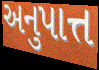
અનુપાત્ત